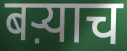
बऱ्‍याच